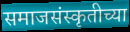
समाजसंस्कृतीच्या